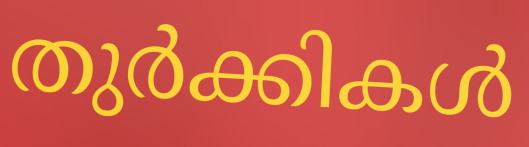
തുർക്കികൾ